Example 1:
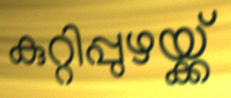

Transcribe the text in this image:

കുറ്റിപ്പുഴയ്ക്ക്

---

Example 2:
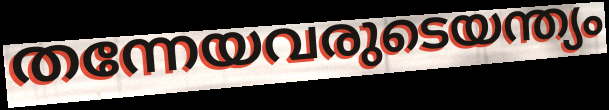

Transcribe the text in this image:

തന്നേയവരുടെയന്ത്യം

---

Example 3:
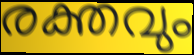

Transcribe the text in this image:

രക്തവും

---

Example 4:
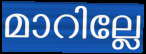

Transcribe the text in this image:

മാറില്ലേ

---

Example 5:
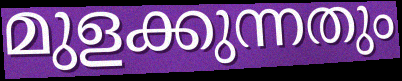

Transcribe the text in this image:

മുളക്കുന്നതും